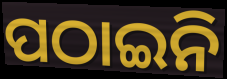
ପଠାଇନି